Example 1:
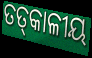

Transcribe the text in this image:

ତତ୍‌କାଳୀୟ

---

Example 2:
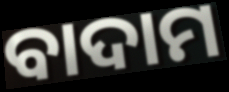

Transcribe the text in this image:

ବାଦାମ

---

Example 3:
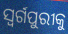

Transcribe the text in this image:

ସ୍ୱର୍ଗପୁରୀକୁ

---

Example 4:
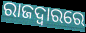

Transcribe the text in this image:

ରାଜଦ୍ୱାରରେ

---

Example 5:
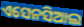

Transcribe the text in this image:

ଏସେନସିଆଲ